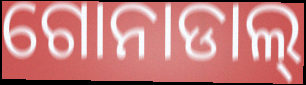
ଗୋନାଡାଲ୍